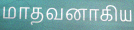
மாதவனாகிய